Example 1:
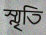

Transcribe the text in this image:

স্মৃতি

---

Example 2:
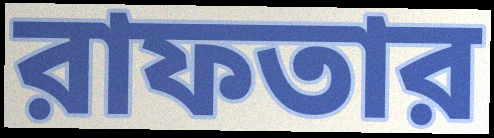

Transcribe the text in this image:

রাফতার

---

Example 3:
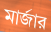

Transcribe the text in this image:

মার্জার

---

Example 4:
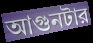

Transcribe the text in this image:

আগুনটার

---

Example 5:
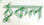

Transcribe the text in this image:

ঠুকল